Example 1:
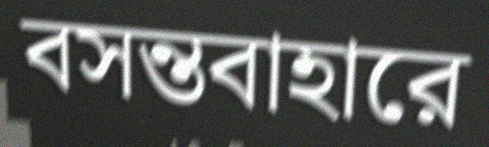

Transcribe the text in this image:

বসন্তবাহারে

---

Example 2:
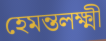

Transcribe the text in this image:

হেমন্তলক্ষ্মী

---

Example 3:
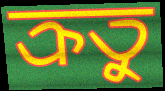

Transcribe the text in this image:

ক্রতু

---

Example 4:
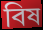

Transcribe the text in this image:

বিষ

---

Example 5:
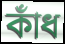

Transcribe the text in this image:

কাঁধ